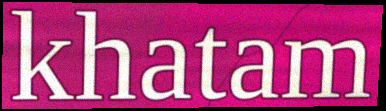
khatam